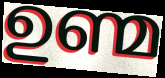
ഉണ്മ